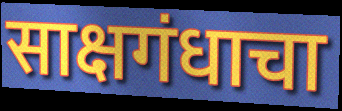
साक्षगंधाचा